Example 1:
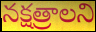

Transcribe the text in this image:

నక్షత్రాలని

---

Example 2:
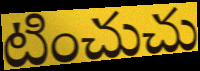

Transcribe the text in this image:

టించుచు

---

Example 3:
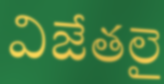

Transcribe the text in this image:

విజేతలై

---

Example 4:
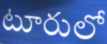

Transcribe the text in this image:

టూరులో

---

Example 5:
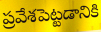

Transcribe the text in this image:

ప్రవేశపెట్టడానికి